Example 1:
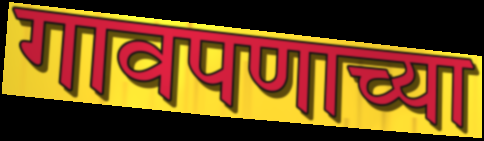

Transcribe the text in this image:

गावपणाच्या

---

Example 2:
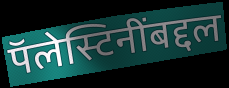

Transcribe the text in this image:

पॅलेस्टिनींबद्दल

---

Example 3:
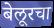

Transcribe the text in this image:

बेलूरचा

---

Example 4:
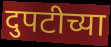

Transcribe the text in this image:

दुपटीच्या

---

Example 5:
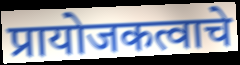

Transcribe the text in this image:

प्रायोजकत्वाचे